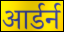
आर्डर्न